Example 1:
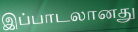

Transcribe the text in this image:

இப்பாடலானது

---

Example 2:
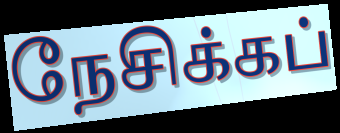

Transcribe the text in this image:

நேசிக்கப்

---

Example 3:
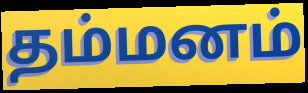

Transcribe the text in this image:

தம்மனம்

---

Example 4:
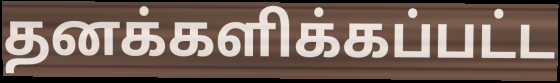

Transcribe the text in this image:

தனக்களிக்கப்பட்ட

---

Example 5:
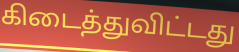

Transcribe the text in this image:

கிடைத்துவிட்டது